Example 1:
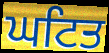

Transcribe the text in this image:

ਘਟਿਤ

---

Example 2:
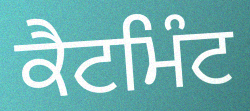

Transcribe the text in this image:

ਕੈਟਮਿੰਟ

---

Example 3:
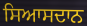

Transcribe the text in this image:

ਸਿਆਸਦਾਨ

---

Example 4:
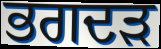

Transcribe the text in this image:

ਭਗਦੜ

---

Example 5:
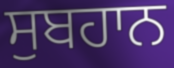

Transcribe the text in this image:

ਸੁਬਹਾਨ